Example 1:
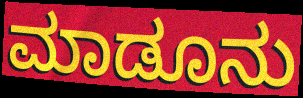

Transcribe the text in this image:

ಮಾಡೂನು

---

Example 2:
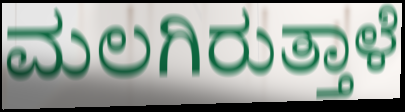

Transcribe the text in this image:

ಮಲಗಿರುತ್ತಾಳೆ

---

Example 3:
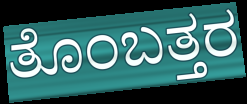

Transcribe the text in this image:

ತೊಂಬತ್ತರ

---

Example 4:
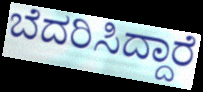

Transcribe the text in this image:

ಬೆದರಿಸಿದ್ದಾರೆ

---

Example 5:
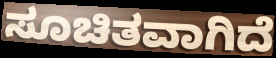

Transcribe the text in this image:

ಸೂಚಿತವಾಗಿದೆ